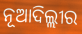
ନୂଆଦିଲ୍ଲୀର